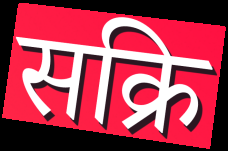
सक्रि